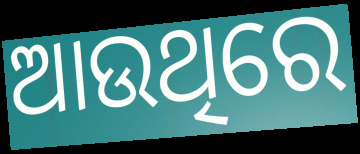
ଆଉଥିରେ